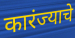
कारंज्याचे